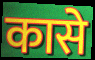
कासे